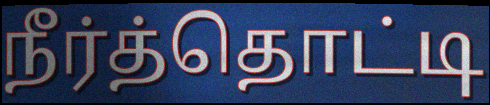
நீர்த்தொட்டி